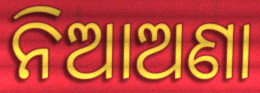
ନିଆଅଣା